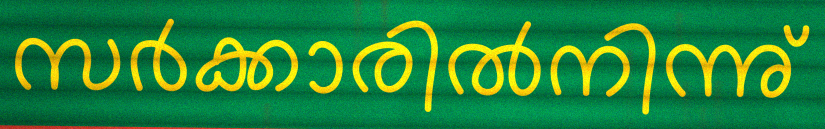
സർക്കാരിൽനിന്നു്